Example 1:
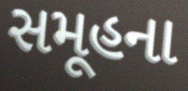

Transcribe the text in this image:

સમૂહના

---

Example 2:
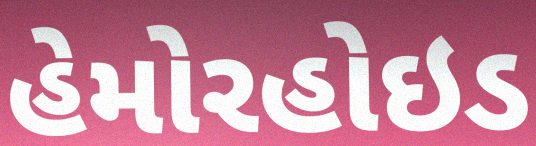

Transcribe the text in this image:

હેમોરહોઇડ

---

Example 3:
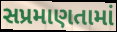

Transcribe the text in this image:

સપ્રમાણતામાં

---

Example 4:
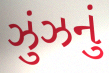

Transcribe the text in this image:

ઝુંઝનું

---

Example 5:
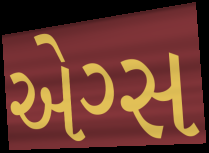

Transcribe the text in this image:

એગ્સ